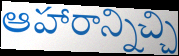
ఆహారాన్నిచ్చి